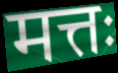
मत्तः